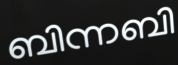
ബിന്നബി